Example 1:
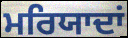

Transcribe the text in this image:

ਮਰਿਯਾਦਾਂ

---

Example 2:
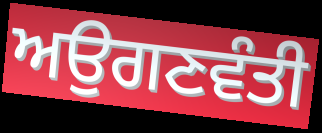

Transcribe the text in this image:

ਅਉਗਣਵੰਤੀ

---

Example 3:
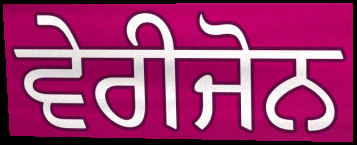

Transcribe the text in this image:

ਵੇਰੀਜੋਨ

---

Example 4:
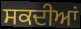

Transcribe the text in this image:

ਸਕਦੀਆਂ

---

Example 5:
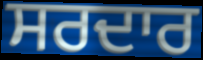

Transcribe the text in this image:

ਸਰਦਾਰ